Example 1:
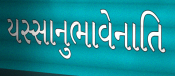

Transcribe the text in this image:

યસ્સાનુભાવેનાતિ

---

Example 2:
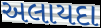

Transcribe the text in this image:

અલાયદા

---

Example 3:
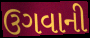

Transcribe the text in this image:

ઉગવાની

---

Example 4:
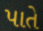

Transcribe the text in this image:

પાતે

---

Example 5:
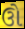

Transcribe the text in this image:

ઉો